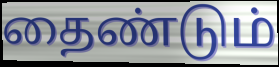
தைண்டும்